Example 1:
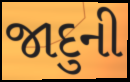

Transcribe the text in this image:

જાદુની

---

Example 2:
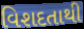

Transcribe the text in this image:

વિશદતાથી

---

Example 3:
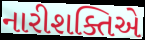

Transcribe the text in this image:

નારીશક્તિએ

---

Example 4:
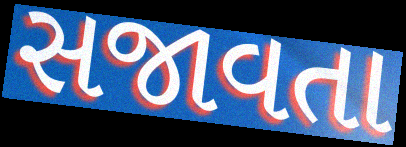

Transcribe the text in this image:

સજાવતા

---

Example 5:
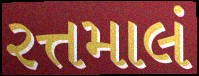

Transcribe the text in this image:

રત્તમાલં